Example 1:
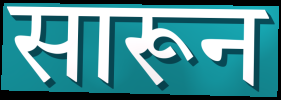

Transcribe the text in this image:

सारून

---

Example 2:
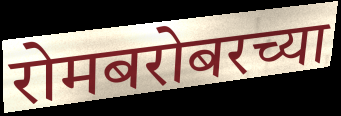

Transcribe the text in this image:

रोमबरोबरच्या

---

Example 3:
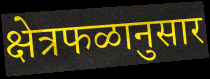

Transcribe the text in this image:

क्षेत्रफळानुसार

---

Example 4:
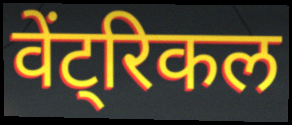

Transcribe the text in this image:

वेंट्रिकल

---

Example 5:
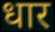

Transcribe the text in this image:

धार